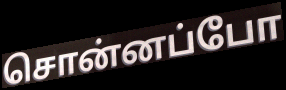
சொன்னப்போ